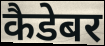
कैडेबर